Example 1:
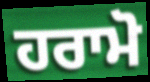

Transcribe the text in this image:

ਹਰਾਮੋ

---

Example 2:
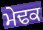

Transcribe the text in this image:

ਮੇਢਕ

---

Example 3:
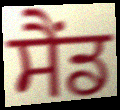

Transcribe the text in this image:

ਸੈਂਡ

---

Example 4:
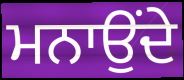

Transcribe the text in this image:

ਮਨਾਉਂਦੇ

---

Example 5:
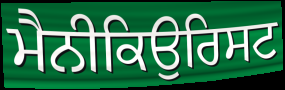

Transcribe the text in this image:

ਮੈਨੀਕਿਉਰਿਸਟ